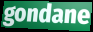
gondane